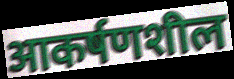
आकर्षणशील